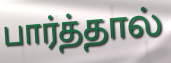
பார்த்தால்